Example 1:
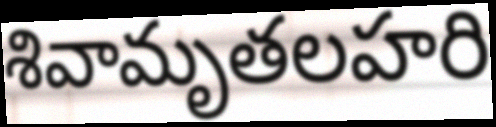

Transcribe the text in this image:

శివామృతలహరి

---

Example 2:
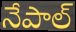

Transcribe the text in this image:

నేపాల్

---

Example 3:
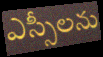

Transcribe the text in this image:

ఎస్సీలను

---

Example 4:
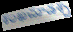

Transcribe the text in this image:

శంఖచూడశ్చ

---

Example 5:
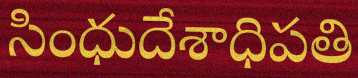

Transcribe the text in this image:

సింధుదేశాధిపతి